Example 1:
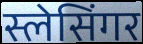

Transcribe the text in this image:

स्लेसिंगर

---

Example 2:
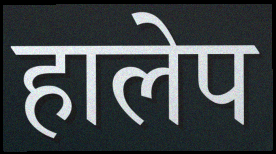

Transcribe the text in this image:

हालेप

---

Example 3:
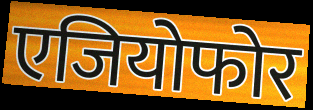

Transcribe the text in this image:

एजियोफोर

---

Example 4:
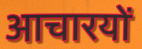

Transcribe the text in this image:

आचारयों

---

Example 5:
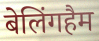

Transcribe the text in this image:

बेलिंगहैम